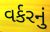
વર્કરનું